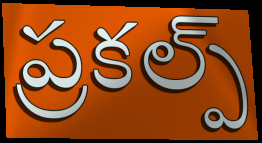
ప్రకల్ప్